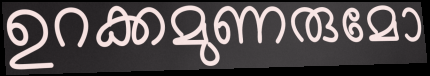
ഉറക്കമുണരുമോ